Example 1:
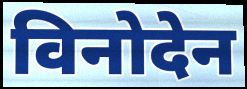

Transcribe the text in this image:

विनोदेन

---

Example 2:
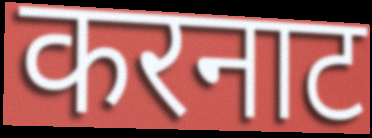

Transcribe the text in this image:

करनाट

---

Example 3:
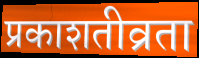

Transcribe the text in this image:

प्रकाशतीव्रता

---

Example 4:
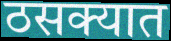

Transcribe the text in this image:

ठसक्यात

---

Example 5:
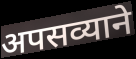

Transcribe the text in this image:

अपसव्याने